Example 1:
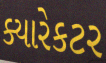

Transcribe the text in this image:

ક્યારેકટર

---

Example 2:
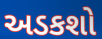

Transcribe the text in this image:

અડકશો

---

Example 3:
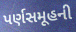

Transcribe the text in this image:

પર્ણસમૂહની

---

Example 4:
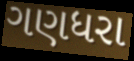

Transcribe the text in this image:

ગણધરા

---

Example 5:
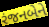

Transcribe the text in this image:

રંજનબેને